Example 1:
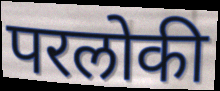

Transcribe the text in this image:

परलोकी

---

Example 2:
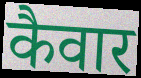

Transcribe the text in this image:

कैवार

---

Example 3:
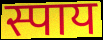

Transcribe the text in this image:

स्पाय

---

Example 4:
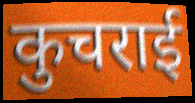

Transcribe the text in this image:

कुचराई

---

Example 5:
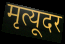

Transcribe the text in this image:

मृत्यूदर